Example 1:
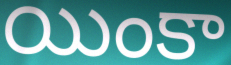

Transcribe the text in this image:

యింకా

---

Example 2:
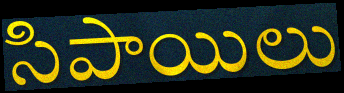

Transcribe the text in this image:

సిపాయిలు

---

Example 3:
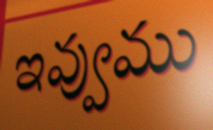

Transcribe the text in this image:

ఇవ్వుము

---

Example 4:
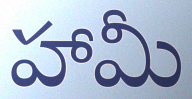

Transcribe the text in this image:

హామీ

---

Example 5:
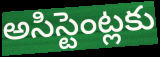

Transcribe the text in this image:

అసిస్టెంట్లకు